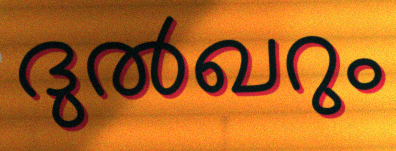
ദുൽഖറും